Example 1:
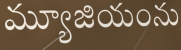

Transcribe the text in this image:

మ్యూజియంను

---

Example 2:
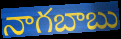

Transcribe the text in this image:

నాగబాబు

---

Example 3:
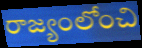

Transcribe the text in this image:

రాజ్యంలోంచి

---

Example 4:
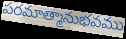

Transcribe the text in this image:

పరమాత్మానుభవము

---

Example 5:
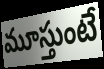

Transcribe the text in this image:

మూస్తుంటే